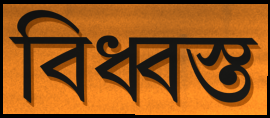
বিধ্বস্ত